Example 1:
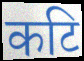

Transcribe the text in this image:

कटि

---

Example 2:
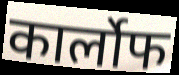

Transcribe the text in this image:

कार्लोफ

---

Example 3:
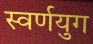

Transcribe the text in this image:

स्वर्णयुग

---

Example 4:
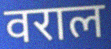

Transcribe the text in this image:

वराल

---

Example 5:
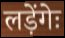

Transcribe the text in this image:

लड़ेंगेः